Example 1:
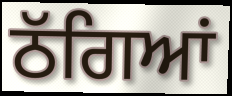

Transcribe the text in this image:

ਠੱਗਿਆਂ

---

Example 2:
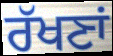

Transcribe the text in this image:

ਰੱਖਣਾਂ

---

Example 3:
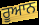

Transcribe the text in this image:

ਰੂਆਨ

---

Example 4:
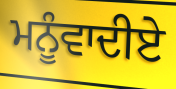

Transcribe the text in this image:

ਮਨੂੰਵਾਦੀਏ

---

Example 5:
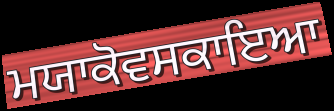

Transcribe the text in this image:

ਮਯਾਕੋਵਸਕਾਇਆ